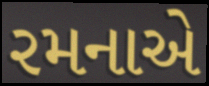
રમનાએ